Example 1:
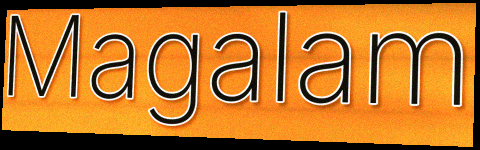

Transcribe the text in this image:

Magalam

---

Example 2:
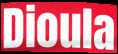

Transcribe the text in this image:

Dioula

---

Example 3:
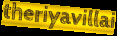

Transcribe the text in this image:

theriyavillai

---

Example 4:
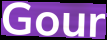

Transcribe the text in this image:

Gour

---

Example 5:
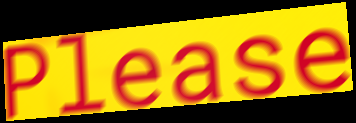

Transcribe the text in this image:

Please